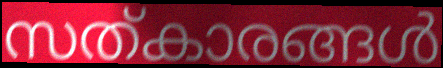
സത്കാരങ്ങൾ